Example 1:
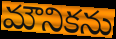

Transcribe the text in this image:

మౌనికను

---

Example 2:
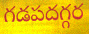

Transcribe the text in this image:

గడపదగ్గర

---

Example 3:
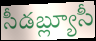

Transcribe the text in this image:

సీడబ్ల్యూసీ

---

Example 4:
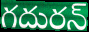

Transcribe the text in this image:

గదురన్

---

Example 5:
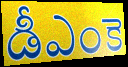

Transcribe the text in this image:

డీఎంకె